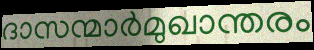
ദാസന്മാർമുഖാന്തരം